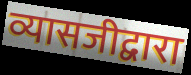
व्यासजीद्वारा